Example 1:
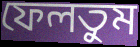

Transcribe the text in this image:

ফেলতুম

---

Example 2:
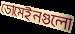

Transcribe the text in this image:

ডোমেইনগুলো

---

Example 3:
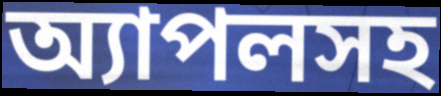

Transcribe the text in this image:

অ্যাপলসহ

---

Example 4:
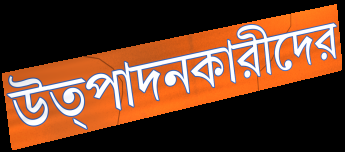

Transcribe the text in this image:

উত্পাদনকারীদের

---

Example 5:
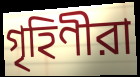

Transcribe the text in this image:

গৃহিণীরা